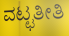
ವಟ್ಟತೀತಿ